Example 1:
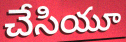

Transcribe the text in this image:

చేసియూ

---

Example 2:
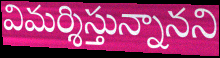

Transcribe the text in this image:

విమర్శిస్తున్నానని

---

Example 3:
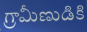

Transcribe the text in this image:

గ్రామీణుడికి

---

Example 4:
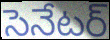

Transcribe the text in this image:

సెనేటర్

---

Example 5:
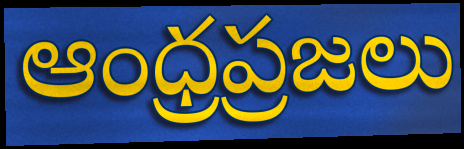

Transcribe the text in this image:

ఆంధ్రప్రజలు